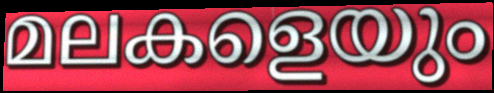
മലകളെയും